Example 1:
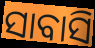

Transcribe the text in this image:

ସାବାସି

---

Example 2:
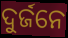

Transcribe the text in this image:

ଦୁର୍ଜନେ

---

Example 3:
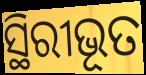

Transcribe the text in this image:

ସ୍ଥିରୀଭୂତ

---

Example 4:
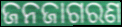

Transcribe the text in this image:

ଜନଜାଗରଣ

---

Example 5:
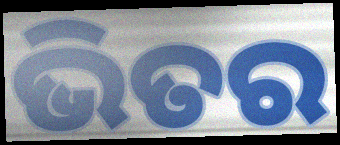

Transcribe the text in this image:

ଭିତର